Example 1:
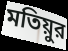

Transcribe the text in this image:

মতিয়ুর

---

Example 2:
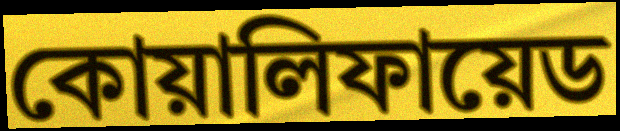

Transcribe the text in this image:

কোয়ালিফায়েড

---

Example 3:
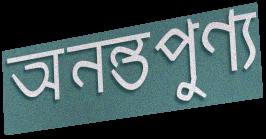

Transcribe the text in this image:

অনন্তপুণ্য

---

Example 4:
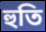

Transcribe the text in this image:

হুতি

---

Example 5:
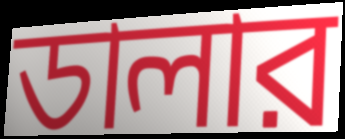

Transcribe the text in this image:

ডালার